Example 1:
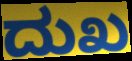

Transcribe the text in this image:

ದುಖ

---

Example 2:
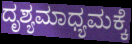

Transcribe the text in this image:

ದೃಶ್ಯಮಾಧ್ಯಮಕ್ಕೆ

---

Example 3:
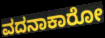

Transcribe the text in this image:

ವದನಾಕಾರೋ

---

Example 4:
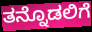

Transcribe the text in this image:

ತನ್ನೊಡಲಿಗೆ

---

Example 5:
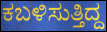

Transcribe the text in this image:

ಕಬಳಿಸುತ್ತಿದ್ದ